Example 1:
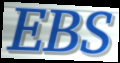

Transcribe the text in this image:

EBS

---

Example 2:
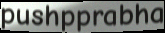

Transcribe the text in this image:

pushpprabha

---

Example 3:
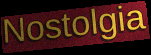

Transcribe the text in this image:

Nostolgia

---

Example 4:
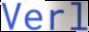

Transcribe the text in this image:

Verl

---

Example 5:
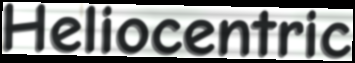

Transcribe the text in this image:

Heliocentric